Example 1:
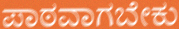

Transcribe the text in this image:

ಪಾಠವಾಗಬೇಕು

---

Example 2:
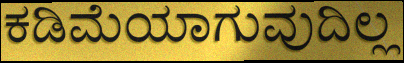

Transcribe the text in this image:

ಕಡಿಮೆಯಾಗುವುದಿಲ್ಲ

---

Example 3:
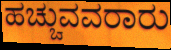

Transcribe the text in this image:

ಹಚ್ಚುವವರಾರು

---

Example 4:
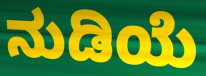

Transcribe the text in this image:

ನುಡಿಯೆ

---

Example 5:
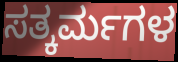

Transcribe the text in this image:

ಸತ್ಕರ್ಮಗಳ